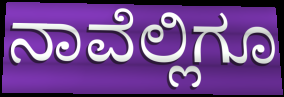
ನಾವೆಲ್ಲಿಗೂ